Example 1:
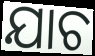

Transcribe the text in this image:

ଯାଚ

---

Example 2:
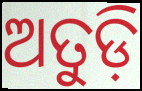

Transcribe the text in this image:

ଅତୁଡ଼ି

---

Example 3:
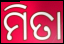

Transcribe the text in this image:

ମିତା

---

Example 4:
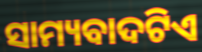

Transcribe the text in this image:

ସାମ୍ୟବାଦଟିଏ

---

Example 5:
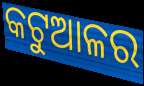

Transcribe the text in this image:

କଟୁଆଳର